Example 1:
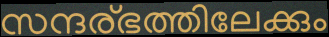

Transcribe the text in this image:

സന്ദര്ഭത്തിലേക്കും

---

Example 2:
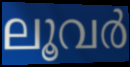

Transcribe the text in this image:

ലൂവർ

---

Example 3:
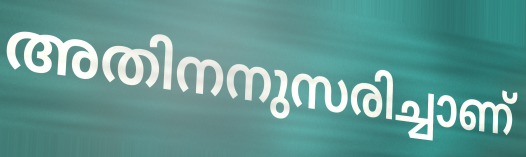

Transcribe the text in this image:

അതിനനുസരിച്ചാണ്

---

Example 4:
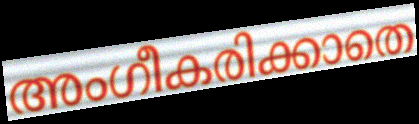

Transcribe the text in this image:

അംഗീകരിക്കാതെ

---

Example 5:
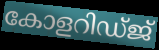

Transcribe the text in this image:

കോളറിഡ്ജ്